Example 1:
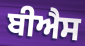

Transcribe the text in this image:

ਬੀਐਸ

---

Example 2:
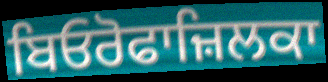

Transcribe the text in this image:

ਬਿਓਰੋਫਾਜ਼ਿਲਕਾ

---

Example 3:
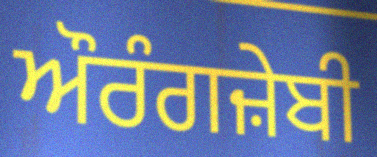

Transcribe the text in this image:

ਔਰੰਗਜ਼ੇਬੀ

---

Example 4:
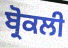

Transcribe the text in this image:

ਬ੍ਰੋਕਲੀ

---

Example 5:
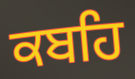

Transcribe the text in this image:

ਕਬਹਿ